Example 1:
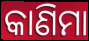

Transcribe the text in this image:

କାଣିମା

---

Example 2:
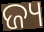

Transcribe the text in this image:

ଜ୍ୟ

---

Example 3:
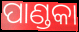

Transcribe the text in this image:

ପାଣ୍ଡକା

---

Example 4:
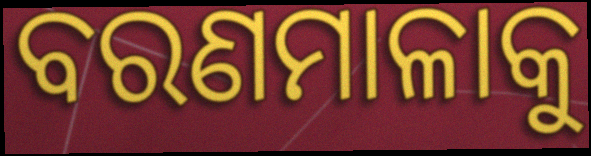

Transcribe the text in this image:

ବରଣମାଳାକୁ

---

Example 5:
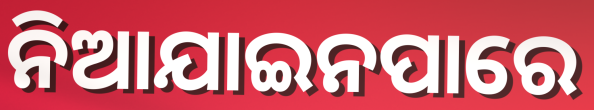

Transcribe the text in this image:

ନିଆଯାଇନପାରେ